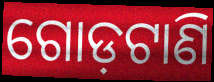
ଗୋଡ଼ଟାଣି